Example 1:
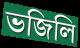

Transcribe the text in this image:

ভজিলি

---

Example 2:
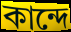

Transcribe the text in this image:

কান্দে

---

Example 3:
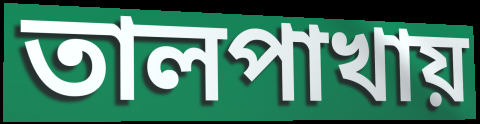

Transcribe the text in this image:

তালপাখায়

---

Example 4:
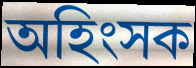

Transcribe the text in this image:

অহিংসক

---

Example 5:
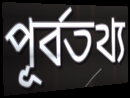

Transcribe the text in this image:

পূর্বতথ্য